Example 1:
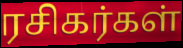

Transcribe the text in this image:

ரசிகர்கள்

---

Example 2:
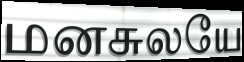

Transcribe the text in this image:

மனசுலயே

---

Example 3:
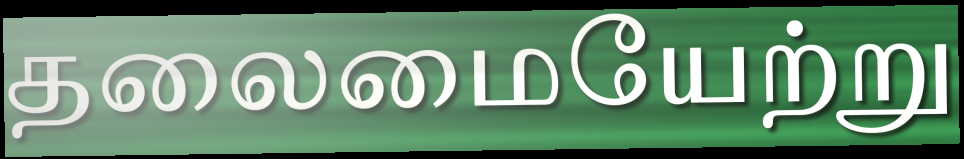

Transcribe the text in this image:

தலைமையேற்று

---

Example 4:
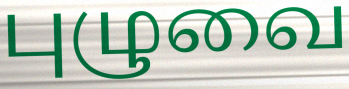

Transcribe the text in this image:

புழுவை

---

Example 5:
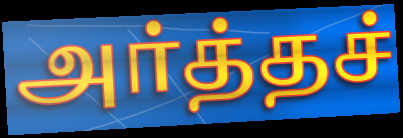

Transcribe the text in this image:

அர்த்தச்